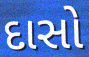
દાસો